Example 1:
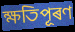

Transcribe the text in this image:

ক্ষতিপূৰণ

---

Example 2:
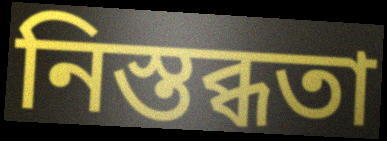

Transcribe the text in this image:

নিস্তব্ধতা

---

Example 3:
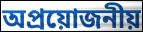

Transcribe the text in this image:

অপ্ৰয়োজনীয়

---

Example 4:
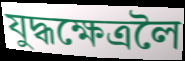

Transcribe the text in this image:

যুদ্ধক্ষেত্ৰলৈ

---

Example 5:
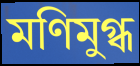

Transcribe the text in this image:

মণিমুগ্ধ